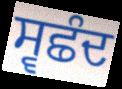
ਸ੍ਵਛੰਦ